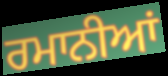
ਰਮਾਨੀਆਂ